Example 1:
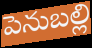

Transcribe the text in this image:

పెనుబల్లి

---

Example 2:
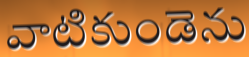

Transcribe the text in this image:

వాటికుండెను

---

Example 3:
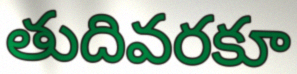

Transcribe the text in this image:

తుదివరకూ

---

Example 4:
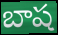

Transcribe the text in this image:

బాష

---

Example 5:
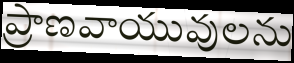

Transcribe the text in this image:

ప్రాణవాయువులను